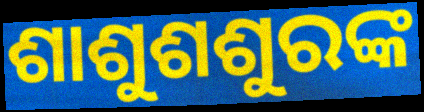
ଶାଶୁଶଶୁରଙ୍କ